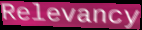
Relevancy